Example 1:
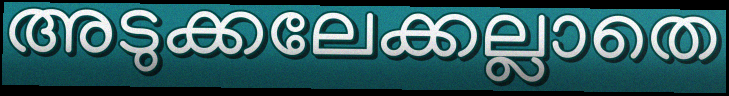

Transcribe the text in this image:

അടുക്കലേക്കല്ലാതെ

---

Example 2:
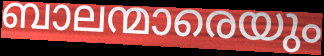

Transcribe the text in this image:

ബാലന്മാരെയും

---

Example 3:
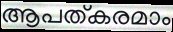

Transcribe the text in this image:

ആപത്കരമാം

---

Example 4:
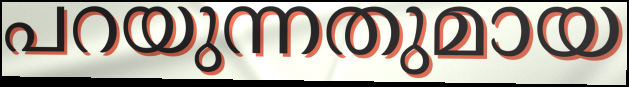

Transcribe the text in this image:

പറയുന്നതുമായ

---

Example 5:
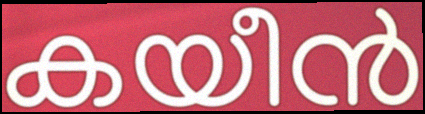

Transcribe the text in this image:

കയീൻ